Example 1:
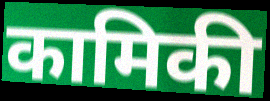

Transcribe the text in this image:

कामिकी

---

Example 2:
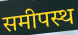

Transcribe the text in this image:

समीपस्थ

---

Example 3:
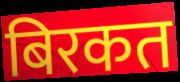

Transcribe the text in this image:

बिरकत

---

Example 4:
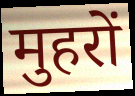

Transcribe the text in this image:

मुहरों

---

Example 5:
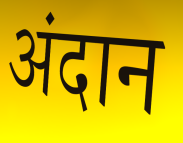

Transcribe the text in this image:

अंदान